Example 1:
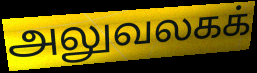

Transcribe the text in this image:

அலுவலகக்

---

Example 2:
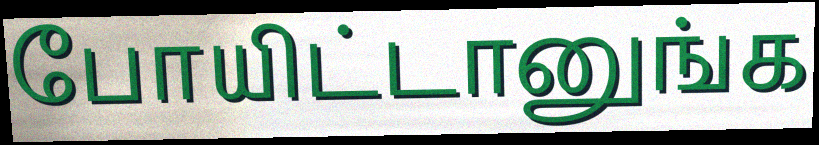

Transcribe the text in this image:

போயிட்டானுங்க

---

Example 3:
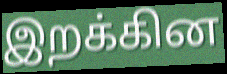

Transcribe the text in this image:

இறக்கின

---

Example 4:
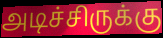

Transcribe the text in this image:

அடிச்சிருக்கு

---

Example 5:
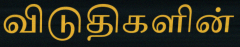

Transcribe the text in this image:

விடுதிகளின்